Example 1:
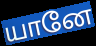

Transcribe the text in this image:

யானே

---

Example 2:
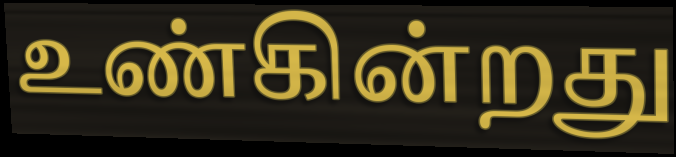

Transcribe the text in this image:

உண்கின்றது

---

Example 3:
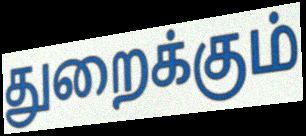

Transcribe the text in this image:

துறைக்கும்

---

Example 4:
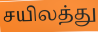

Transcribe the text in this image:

சயிலத்து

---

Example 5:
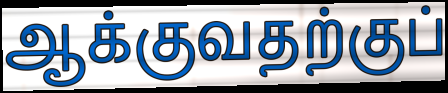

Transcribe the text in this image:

ஆக்குவதற்குப்